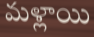
మళ్లాయి